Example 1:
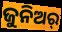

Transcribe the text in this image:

ଜୁନିଅର୍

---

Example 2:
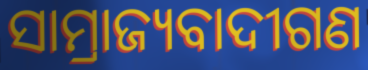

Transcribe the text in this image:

ସାମ୍ରାଜ୍ୟବାଦୀଗଣ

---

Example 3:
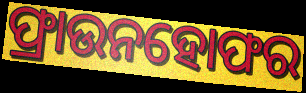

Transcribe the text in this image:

ଫ୍ରାଉନହୋଫର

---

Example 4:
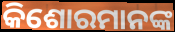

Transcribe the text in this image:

କିଶୋରମାନଙ୍କ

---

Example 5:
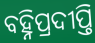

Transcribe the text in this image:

ବହ୍ନିପ୍ରଦୀପ୍ତି